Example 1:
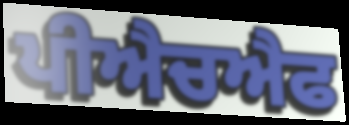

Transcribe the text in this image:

ਪੀਐਚਐਫ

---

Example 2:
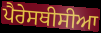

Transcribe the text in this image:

ਪੈਰੇਸਥੀਸੀਆ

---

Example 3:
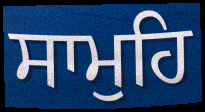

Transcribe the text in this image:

ਸਾਮੁਹਿ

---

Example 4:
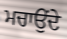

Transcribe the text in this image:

ਮਚਾਉਂਦੇ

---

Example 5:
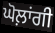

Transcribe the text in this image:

ਘੋਲ਼ਾਂਗੀ